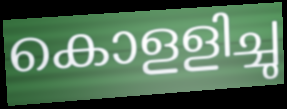
കൊളളിച്ചു